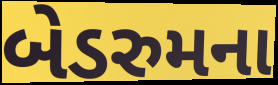
બેડરુમના